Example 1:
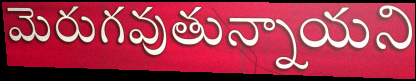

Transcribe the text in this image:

మెరుగవుతున్నాయని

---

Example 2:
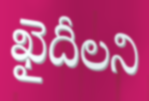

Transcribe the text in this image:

ఖైదీలని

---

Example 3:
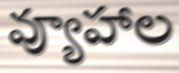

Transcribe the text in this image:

వ్యూహాల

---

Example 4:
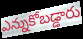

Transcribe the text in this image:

ఎన్నుకోబడ్డారు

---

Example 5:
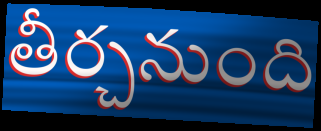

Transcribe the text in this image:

తీర్చనుంది